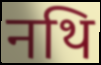
नथि